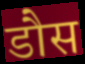
डौस